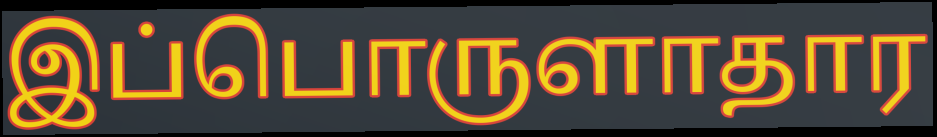
இப்பொருளாதார